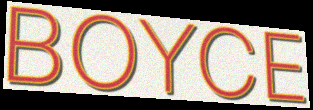
BOYCE